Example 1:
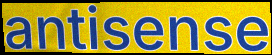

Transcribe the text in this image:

antisense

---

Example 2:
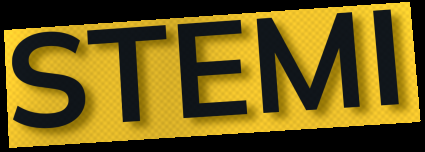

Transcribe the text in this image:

STEMI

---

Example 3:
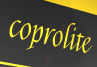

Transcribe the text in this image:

coprolite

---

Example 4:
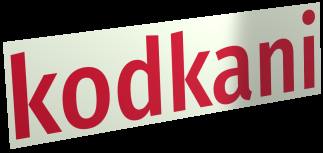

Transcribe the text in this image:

kodkani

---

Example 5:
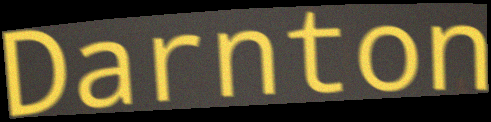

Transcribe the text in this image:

Darnton